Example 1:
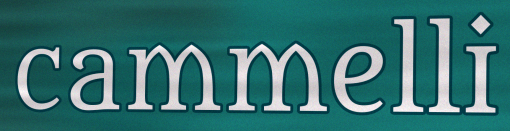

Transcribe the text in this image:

cammelli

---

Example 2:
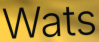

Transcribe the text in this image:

Wats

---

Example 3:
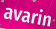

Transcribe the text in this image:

avarin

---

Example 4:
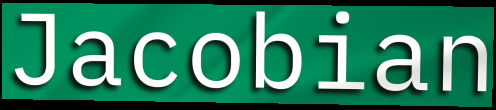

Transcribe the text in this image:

Jacobian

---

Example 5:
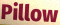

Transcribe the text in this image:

Pillow